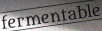
fermentable